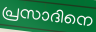
പ്രസാദിനെ